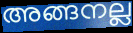
അങ്ങനല്ല